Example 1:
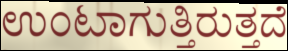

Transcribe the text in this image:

ಉಂಟಾಗುತ್ತಿರುತ್ತದೆ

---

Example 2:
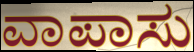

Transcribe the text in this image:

ವಾಪಾಸು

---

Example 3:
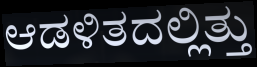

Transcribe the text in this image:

ಆಡಳಿತದಲ್ಲಿತ್ತು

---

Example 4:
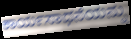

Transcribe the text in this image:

ಕಾರ್ಯಸಾಧನೆಯನ್ನು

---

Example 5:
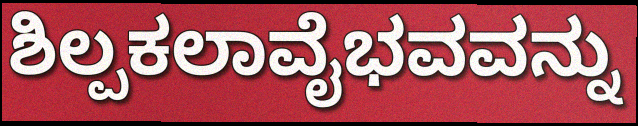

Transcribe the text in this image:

ಶಿಲ್ಪಕಲಾವೈಭವವನ್ನು